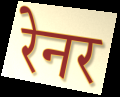
रेनर